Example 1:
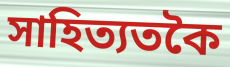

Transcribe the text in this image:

সাহিত্যতকৈ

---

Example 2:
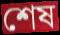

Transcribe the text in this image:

শেষ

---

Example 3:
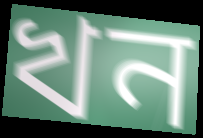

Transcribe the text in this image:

খন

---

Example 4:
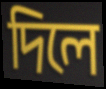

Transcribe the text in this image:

দিলে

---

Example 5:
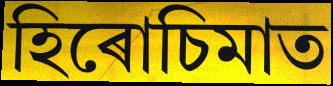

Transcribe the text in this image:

হিৰোচিমাত